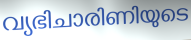
വ്യഭിചാരിണിയുടെ